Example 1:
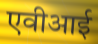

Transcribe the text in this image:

एवीआई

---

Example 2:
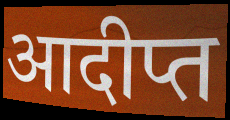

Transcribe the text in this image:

आदीप्त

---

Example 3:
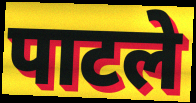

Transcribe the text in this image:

पाटले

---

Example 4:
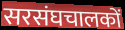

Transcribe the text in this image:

सरसंघचालकों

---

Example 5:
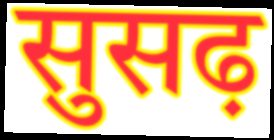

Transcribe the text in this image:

सुसढ़